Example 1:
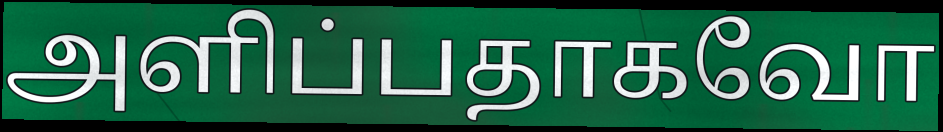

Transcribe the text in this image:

அளிப்பதாகவோ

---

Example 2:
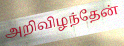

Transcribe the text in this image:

அறிவிழந்தேன்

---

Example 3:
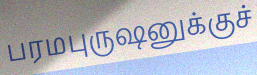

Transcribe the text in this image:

பரமபுருஷனுக்குச்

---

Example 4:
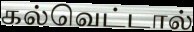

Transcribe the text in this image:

கல்வெட்டால்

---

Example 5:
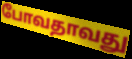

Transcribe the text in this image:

போவதாவது